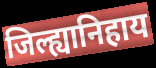
जिल्ह्यानिहाय